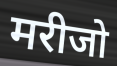
मरीजो